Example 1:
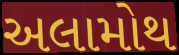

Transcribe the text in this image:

અલામોથ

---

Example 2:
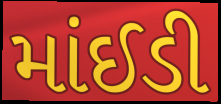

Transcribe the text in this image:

માંઈડી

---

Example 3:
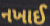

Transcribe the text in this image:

નખાઈ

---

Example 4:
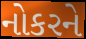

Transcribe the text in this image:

નોકરને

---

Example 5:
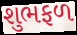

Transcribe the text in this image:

શુભફળ